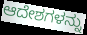
ಆದೇಶಗಳನ್ನು